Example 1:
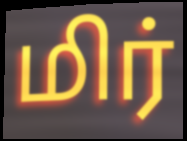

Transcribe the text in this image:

மிர்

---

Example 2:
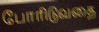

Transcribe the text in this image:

போரிடுவதை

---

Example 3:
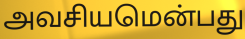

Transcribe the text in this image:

அவசியமென்பது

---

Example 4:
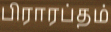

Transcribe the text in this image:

பிராரப்தம்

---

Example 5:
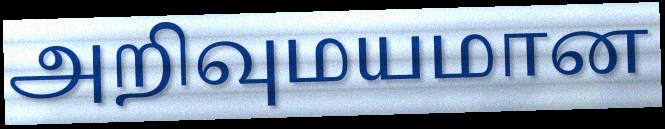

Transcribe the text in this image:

அறிவுமயமான